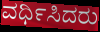
ವರ್ಧಿಸಿದರು